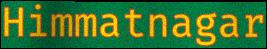
Himmatnagar